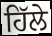
ਹਿੱਲੇ